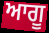
ਆਗੂ